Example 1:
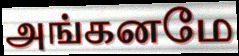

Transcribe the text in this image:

அங்கனமே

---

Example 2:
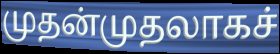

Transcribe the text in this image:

முதன்முதலாகச்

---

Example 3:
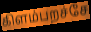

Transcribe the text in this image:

கிளம்பறச்சே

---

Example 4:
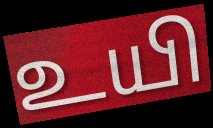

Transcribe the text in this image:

உயி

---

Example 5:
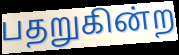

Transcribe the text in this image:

பதறுகின்ற